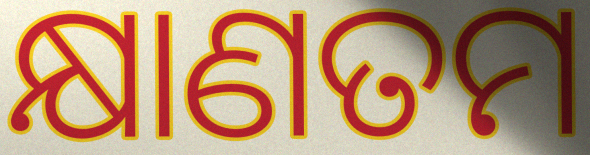
କ୍ଷାଣତମ